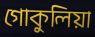
গোকুলিয়া